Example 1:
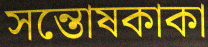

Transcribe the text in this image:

সন্তোষকাকা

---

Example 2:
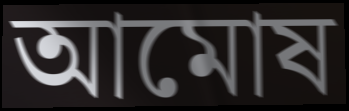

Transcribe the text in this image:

আমোষ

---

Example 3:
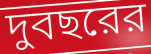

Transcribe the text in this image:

দুবছরের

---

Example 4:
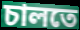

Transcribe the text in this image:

চালতে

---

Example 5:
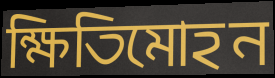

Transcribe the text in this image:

ক্ষিতিমোহন